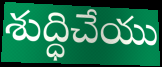
శుద్ధిచేయు